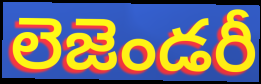
లెజెండరీ